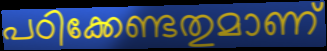
പഠിക്കേണ്ടതുമാണ്